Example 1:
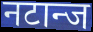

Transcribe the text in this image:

नटान्ज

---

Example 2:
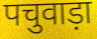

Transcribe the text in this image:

पचुवाड़ा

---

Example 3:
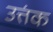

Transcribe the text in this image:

उत्तंक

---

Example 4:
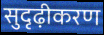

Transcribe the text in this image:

सुदृढ़ीकरण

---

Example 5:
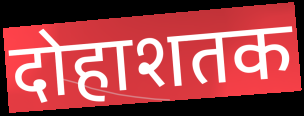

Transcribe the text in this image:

दोहाशतक